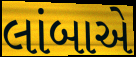
લાંબાએ